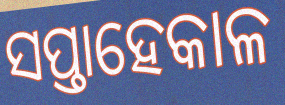
ସପ୍ତାହେକାଳ